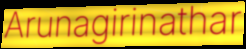
Arunagirinathar